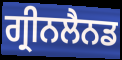
ਗ੍ਰੀਨਲੈਨਡ